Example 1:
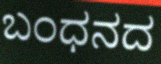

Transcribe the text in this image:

ಬಂಧನದ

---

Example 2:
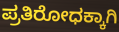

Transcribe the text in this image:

ಪ್ರತಿರೋಧಕ್ಕಾಗಿ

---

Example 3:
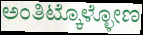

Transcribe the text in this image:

ಅಂತಿಟ್ಕೊಳ್ಳೋಣ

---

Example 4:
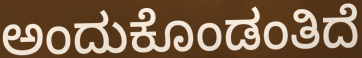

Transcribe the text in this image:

ಅಂದುಕೊಂಡಂತಿದೆ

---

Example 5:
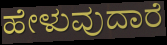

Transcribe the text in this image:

ಹೇಳುವುದಾರೆ